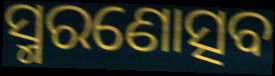
ସ୍ମରଣୋତ୍ସବ